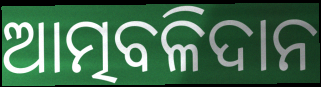
ଆତ୍ମବଳିଦାନ